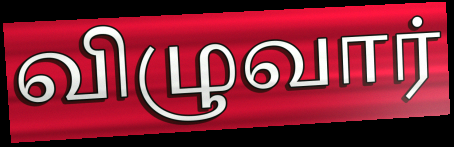
விழுவார்